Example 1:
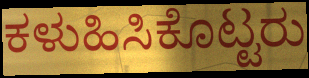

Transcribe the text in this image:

ಕಳುಹಿಸಿಕೊಟ್ಟರು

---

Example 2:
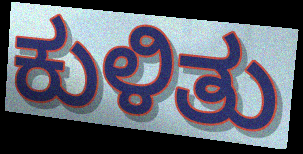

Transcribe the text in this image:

ಕುಳಿತು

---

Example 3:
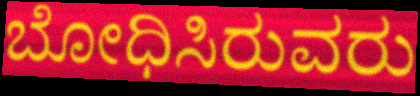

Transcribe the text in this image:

ಬೋಧಿಸಿರುವರು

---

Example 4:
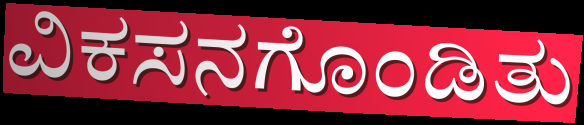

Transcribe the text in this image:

ವಿಕಸನಗೊಂಡಿತು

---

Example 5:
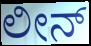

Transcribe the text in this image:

ಲೀನ್